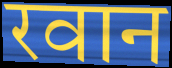
रवान